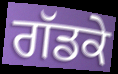
ਗੱਡਕੇ